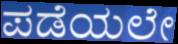
ಪಡೆಯಲೇ